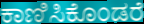
ಕಾಣಿಸಿಕೊಂಡರೆ